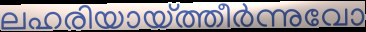
ലഹരിയായ്ത്തീർന്നുവോ